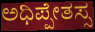
ಅಧಿಪ್ಪೇತಸ್ಸ